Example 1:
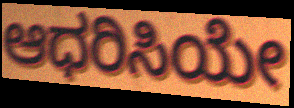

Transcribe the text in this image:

ಆಧರಿಸಿಯೇ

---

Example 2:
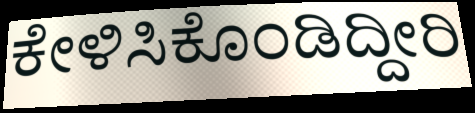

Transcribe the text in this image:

ಕೇಳಿಸಿಕೊಂಡಿದ್ದೀರಿ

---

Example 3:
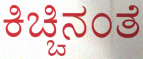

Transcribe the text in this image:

ಕಿಚ್ಚಿನಂತೆ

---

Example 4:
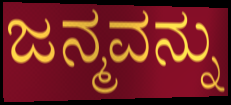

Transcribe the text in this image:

ಜನ್ಮವನ್ನು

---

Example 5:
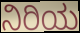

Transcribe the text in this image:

ನಿರಿಯ